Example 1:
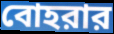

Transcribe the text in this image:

বোহরার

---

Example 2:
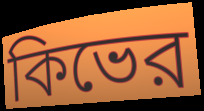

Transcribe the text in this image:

কিভের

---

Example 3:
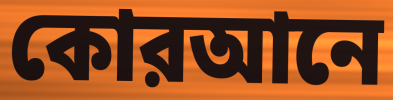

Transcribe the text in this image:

কোরআনে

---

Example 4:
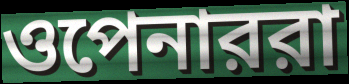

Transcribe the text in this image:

ওপেনাররা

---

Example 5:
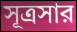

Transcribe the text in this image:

সূত্রসার